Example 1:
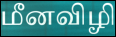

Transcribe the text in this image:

மீனவிழி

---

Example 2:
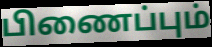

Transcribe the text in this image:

பிணைப்பும்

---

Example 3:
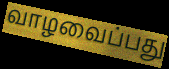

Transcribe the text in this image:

வாழவைப்பது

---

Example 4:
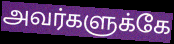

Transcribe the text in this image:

அவர்களுக்கே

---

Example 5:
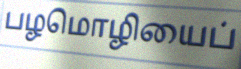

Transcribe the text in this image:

பழமொழியைப்